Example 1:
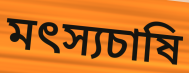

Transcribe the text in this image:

মৎস্যচাষি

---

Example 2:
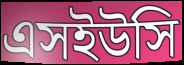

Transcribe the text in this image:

এসইউসি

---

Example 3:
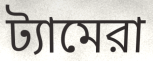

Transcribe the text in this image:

ট্যামেরা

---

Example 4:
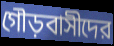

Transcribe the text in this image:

গৌড়বাসীদের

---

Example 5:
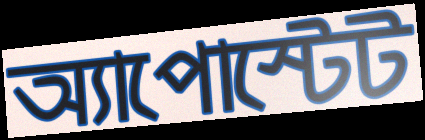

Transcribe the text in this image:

অ্যাপোস্টেট